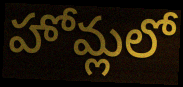
హోమ్లలో